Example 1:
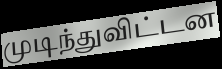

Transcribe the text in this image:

முடிந்துவிட்டன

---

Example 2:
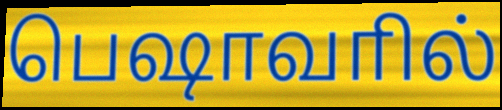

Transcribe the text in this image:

பெஷாவரில்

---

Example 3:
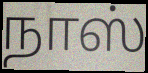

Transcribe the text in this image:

நாஸ்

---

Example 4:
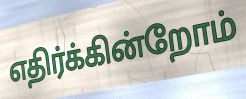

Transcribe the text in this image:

எதிர்க்கின்றோம்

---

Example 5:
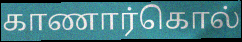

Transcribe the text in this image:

காணார்கொல்